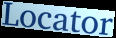
Locator